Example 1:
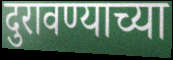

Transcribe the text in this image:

दुरावण्याच्या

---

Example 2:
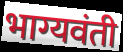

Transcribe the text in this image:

भाग्यवंती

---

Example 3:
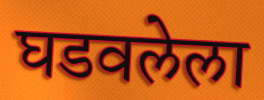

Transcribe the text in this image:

घडवलेला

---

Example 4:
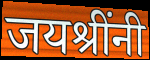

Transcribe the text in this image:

जयश्रींनी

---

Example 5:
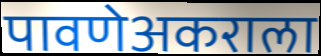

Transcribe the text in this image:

पावणेअकराला